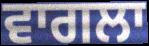
ਵਾਗਲਾ